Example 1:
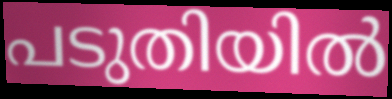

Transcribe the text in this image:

പടുതിയിൽ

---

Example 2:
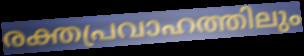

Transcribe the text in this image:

രക്തപ്രവാഹത്തിലും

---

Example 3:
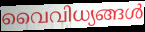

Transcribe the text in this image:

വൈവിധ്യങ്ങൾ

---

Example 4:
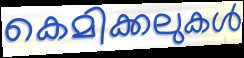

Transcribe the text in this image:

കെമിക്കലുകൾ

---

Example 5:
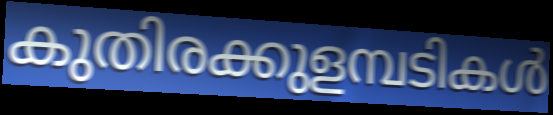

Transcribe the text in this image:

കുതിരക്കുളമ്പടികൾ